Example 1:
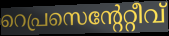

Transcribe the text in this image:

റെപ്രസെന്റേറ്റീവ്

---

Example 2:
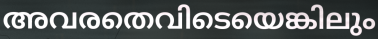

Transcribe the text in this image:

അവരതെവിടെയെങ്കിലും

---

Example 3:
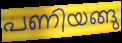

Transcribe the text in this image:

പണിയങ്ങു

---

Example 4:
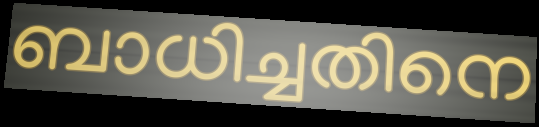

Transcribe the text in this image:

ബാധിച്ചതിനെ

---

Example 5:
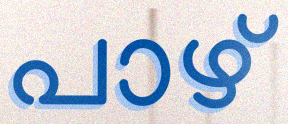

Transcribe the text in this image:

പാഴ്